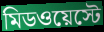
মিডওয়েস্টে